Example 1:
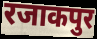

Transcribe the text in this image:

रजाकपुर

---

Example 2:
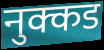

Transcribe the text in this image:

नुक्कड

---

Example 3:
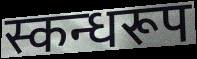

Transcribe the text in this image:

स्कन्धरूप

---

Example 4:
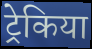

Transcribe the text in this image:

ट्रेकिया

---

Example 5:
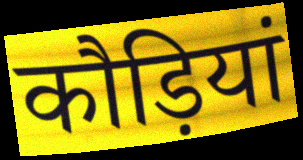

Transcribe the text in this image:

कौड़ियां